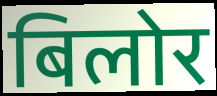
बिलोर